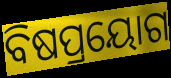
ବିଷପ୍ରୟୋଗ